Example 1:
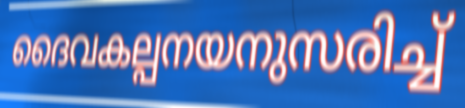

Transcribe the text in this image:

ദൈവകല്പനയനുസരിച്ച്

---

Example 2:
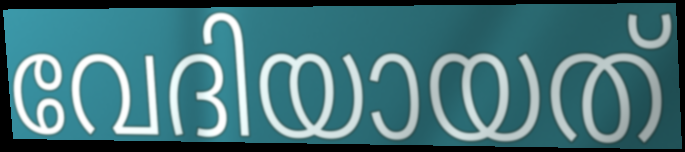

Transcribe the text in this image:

വേദിയായത്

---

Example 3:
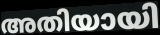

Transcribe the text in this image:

അതിയായി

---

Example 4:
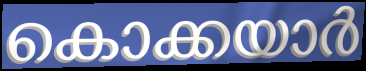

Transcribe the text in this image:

കൊക്കയാർ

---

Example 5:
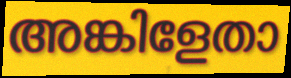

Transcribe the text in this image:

അങ്കിളേതാ